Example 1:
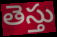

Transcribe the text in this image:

తెస్తు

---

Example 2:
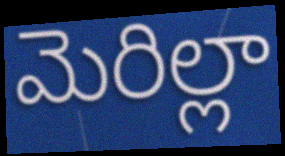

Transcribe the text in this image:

మెరిల్లా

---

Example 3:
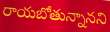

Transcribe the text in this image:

రాయబోతున్నానని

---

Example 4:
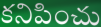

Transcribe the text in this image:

కనిపించు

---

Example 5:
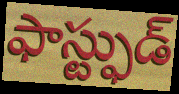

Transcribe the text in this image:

ఫాస్ట్ఫుడ్